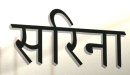
सरिना